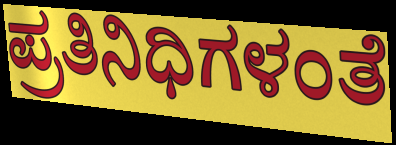
ಪ್ರತಿನಿಧಿಗಳಂತೆ